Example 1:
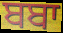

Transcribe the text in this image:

ਬਬਾ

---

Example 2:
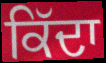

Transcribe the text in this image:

ਕਿੱਦਾ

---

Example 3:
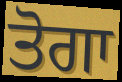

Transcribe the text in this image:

ਤੋਗਾ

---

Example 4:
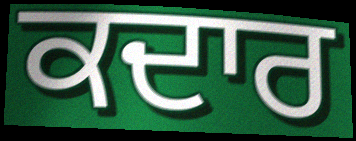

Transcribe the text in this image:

ਕਦਾਰ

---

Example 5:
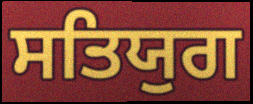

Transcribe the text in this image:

ਸਤਿਯੁਗ